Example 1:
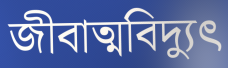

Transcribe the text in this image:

জীবাত্মবিদ্যুৎ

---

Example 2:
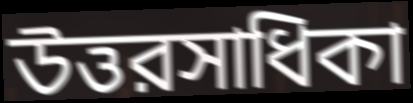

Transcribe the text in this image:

উত্তরসাধিকা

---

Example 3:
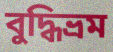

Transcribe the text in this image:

বুদ্ধিভ্রম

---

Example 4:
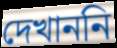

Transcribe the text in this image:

দেখাননি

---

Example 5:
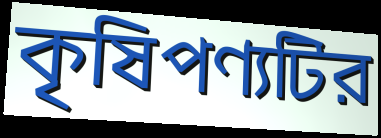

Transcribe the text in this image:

কৃষিপণ্যটির